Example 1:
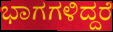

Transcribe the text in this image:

ಭಾಗಗಳಿದ್ದರೆ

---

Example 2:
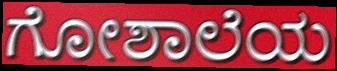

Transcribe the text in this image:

ಗೋಶಾಲೆಯ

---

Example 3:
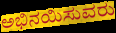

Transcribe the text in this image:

ಅಭಿನಯಿಸುವರು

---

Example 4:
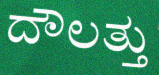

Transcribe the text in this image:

ದೌಲತ್ತು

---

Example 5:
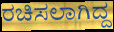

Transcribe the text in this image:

ರಚಿಸಲಾಗಿದ್ದ